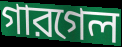
গারগেল